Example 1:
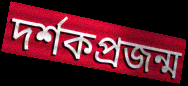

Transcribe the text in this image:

দর্শকপ্রজন্ম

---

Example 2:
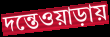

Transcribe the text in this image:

দন্তেওয়াড়ায়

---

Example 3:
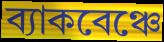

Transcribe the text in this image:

ব্যাকবেঞ্চে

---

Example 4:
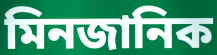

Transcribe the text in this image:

মিনজানিক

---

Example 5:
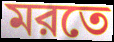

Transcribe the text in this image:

মরতে